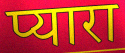
प्यारा